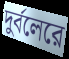
দুর্বলেরে